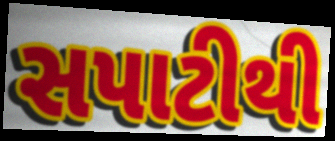
સપાટીથી